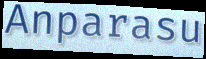
Anparasu